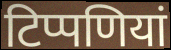
टिप्‍पणियां